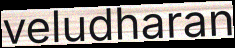
veludharan